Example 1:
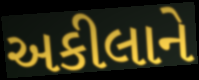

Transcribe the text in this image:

અકીલાને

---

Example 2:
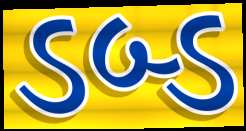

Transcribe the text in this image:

ડબ્ડ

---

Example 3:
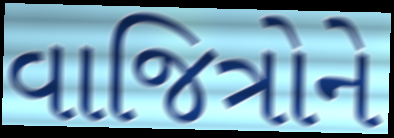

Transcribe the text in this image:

વાજિત્રોને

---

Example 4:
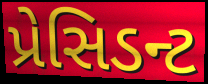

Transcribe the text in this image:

પ્રેસિડન્ટ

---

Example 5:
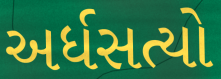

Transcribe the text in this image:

અર્ધસત્યો